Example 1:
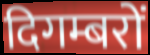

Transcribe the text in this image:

दिगम्बरों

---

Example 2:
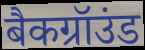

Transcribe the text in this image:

बैकग्रॉउंड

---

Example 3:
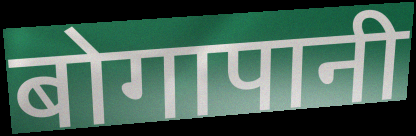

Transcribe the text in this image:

बोगापानी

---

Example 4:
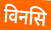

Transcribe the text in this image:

विनसि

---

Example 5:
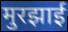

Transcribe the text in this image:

मुरझाई